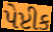
પેપ્ટીક